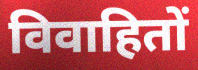
विवाहितों